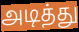
அடித்து